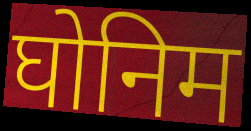
घोनिम